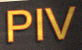
PIV